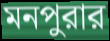
মনপুরার